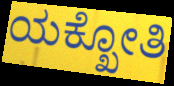
ಯಕ್ಖೋತಿ